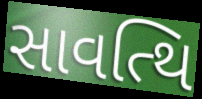
સાવત્થિ